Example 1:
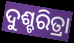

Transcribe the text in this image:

ଦୁଶ୍ଚରିତ୍ରା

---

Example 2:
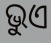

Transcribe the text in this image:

ଭୁଏ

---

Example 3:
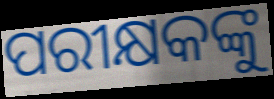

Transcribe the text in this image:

ପରୀକ୍ଷକଙ୍କୁ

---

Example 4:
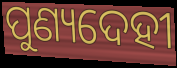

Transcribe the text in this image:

ପୁଣ୍ୟଦେହୀ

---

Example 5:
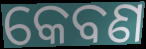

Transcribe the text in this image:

କେବଣ